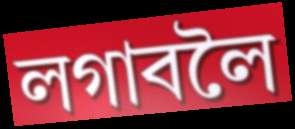
লগাবলৈ